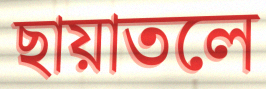
ছায়াতলে